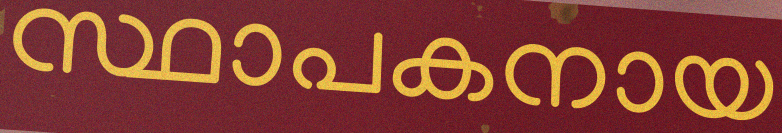
സ്ഥാപകനായ